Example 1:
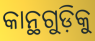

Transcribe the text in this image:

କାନ୍ଥଗୁଡ଼ିକୁ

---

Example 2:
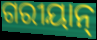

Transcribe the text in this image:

ଗରୀୟାନ୍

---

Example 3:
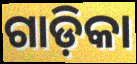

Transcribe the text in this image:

ଗାଡ଼ିକା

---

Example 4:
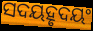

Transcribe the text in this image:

ସଦୟହୃଦୟଂ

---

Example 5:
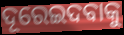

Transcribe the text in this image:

ଦୂରେଇଦବାକୁ